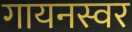
गायनस्वर